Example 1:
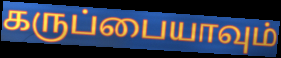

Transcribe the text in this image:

கருப்பையாவும்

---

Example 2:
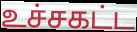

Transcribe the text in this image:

உச்சகட்ட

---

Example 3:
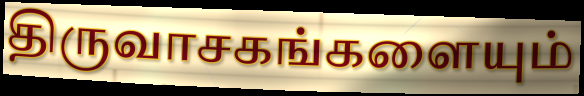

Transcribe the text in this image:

திருவாசகங்களையும்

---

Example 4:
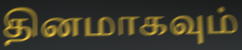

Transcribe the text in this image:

தினமாகவும்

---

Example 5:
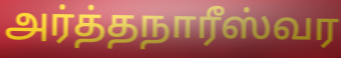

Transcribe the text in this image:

அர்த்தநாரீஸ்வர